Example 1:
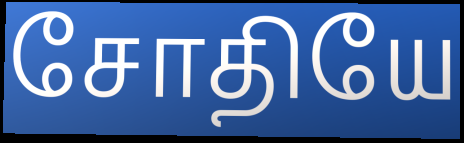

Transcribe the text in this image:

சோதியே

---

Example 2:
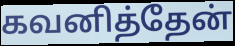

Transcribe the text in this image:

கவனித்தேன்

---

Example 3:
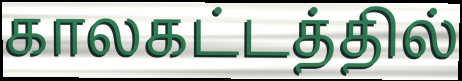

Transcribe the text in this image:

காலகட்டத்தில்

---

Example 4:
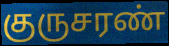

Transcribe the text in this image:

குருசரண்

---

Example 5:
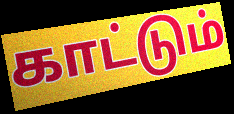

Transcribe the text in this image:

காட்டும்